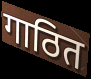
गाठित